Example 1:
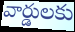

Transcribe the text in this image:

వార్డులకు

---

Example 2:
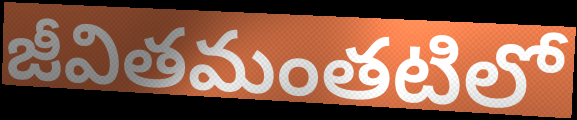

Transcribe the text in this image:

జీవితమంతటిలో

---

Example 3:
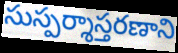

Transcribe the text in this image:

సుస్పర్శాస్తరణాని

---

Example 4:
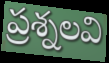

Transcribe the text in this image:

ప్రశ్నలవి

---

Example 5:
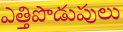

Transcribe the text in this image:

ఎత్తిపొడుపులు